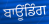
ਬਾਊਂਡਿੰਗ